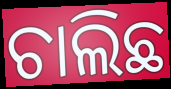
ଚାଲିଛ